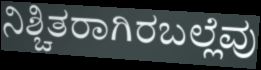
ನಿಶ್ಚಿತರಾಗಿರಬಲ್ಲೆವು